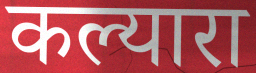
कल्यारा